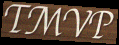
TMVP